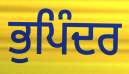
ਭੁਪਿੰਦਰ